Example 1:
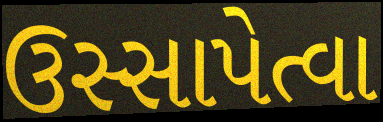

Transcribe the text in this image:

ઉસ્સાપેત્વા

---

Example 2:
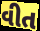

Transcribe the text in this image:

વીત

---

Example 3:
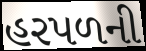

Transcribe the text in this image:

હરપળની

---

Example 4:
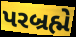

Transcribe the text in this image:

પરબ્રહ્મે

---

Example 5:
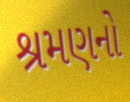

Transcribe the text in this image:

શ્રમણનો